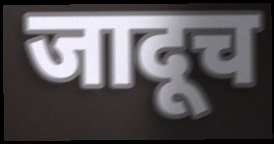
जादूच